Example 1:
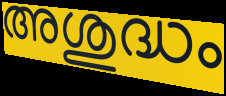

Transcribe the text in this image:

അശുദ്ധം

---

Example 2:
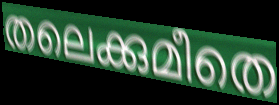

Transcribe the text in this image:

തലെക്കുമീതെ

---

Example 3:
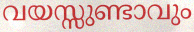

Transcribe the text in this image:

വയസ്സുണ്ടാവും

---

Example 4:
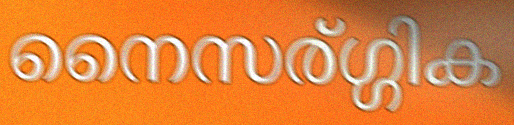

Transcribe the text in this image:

നൈസര്ഗ്ഗിക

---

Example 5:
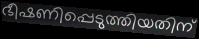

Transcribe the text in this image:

ഭീഷണിപ്പെടുത്തിയതിന്